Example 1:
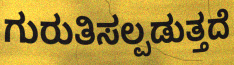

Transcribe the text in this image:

ಗುರುತಿಸಲ್ಪಡುತ್ತದೆ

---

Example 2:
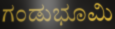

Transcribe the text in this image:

ಗಂಡುಭೂಮಿ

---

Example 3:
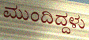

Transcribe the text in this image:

ಮುಂದಿದ್ದಳು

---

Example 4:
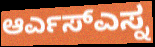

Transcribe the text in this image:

ಆರ್ಎಸ್ಎಸ್ನ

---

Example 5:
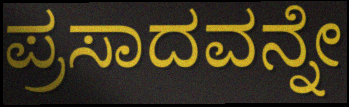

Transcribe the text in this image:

ಪ್ರಸಾದವನ್ನೇ